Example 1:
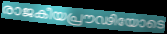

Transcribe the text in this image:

രാജകീയപ്രൗഢിയോടെ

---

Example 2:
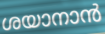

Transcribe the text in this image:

ശയാനാൻ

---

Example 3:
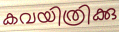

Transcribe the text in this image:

കവയിത്രിക്കു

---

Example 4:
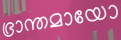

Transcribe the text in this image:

ഭ്രാന്തമായോ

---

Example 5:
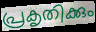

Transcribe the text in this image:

പ്രകൃതിക്കും